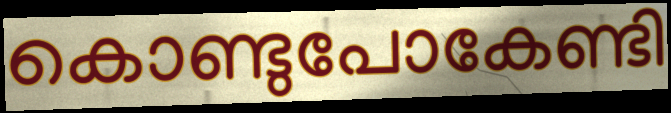
കൊണ്ടുപോകേണ്ടി